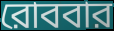
রোববার